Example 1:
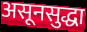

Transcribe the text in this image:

असूनसुद्धा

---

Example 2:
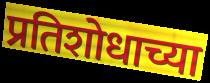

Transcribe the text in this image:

प्रतिशोधाच्या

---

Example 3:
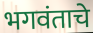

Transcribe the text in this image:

भगवंताचे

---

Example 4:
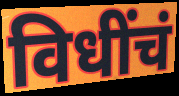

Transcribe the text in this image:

विधींचं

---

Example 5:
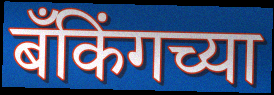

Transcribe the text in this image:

बँकिंगच्या